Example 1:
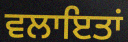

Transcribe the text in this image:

ਵਲਾਇਤਾਂ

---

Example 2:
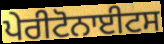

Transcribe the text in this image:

ਪੇਰੀਟੋਨਾਈਟਸ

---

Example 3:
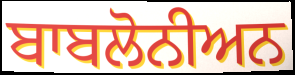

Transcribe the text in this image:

ਬਾਬਲੋਨੀਅਨ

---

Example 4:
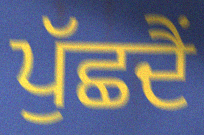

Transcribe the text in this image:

ਪੁੱਛਦੈਂ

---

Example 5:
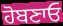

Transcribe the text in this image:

ਹੋਬਣਾਓ